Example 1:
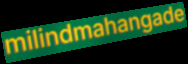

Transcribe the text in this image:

milindmahangade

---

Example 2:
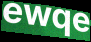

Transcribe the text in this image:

ewqe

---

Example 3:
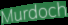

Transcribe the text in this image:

Murdoch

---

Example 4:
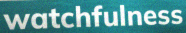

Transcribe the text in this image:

watchfulness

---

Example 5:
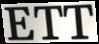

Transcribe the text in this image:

ETT